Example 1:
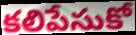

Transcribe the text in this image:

కలిపేసుకో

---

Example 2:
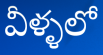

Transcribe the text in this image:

వీళ్ళలో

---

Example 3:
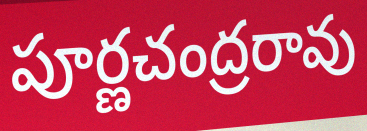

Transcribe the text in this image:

పూర్ణచంద్రరావు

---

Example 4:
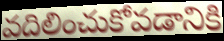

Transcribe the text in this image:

వదిలించుకోవడానికి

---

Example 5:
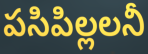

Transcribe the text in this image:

పసిపిల్లలనీ